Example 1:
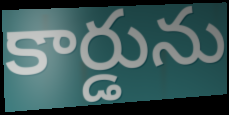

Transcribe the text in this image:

కార్డును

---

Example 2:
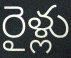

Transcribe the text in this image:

రైళ్లు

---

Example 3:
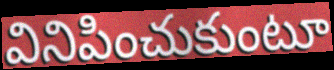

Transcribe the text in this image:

వినిపించుకుంటూ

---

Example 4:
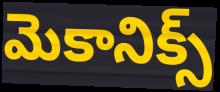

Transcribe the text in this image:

మెకానిక్స్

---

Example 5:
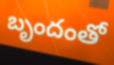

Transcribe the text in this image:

బృందంతో